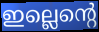
ഇല്ലെന്റെ